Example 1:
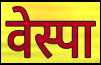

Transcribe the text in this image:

वेस्पा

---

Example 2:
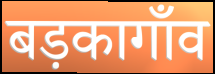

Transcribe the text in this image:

बड़कागाँव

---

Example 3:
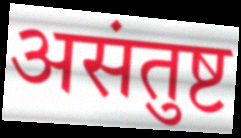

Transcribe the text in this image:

असंतुष्ट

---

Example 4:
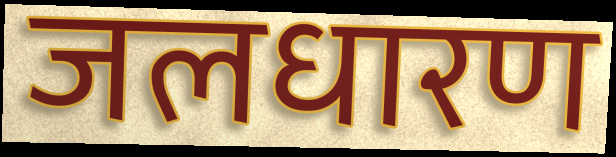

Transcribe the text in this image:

जलधारण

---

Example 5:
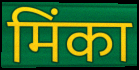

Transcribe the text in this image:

मिंका